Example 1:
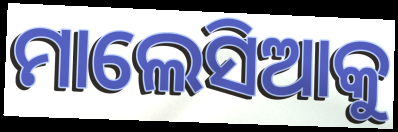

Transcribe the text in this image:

ମାଲେସିଆକୁ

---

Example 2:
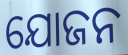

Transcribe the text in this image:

ଯୋଜନ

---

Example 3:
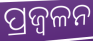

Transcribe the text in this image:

ପ୍ରଜ୍ବଳନ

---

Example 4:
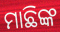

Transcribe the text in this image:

ମାଛିଙ୍କ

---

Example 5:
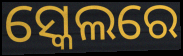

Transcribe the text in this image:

ସ୍କେଲରେ